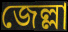
জেল্লা